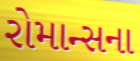
રોમાન્સના